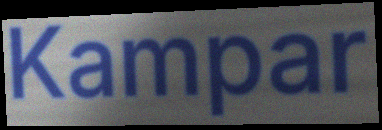
Kampar